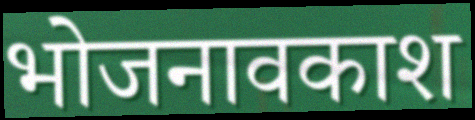
भोजनावकाश